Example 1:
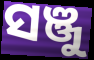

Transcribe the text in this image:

ସଞ୍ଜୁ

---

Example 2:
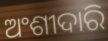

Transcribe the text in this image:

ଅଂଶୀଦାରି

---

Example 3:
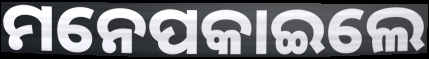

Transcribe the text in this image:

ମନେପକାଇଲେ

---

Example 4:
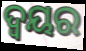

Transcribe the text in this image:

ଦ୍ଵୟର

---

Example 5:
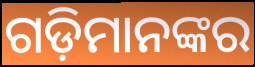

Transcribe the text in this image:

ଗଡ଼ିମାନଙ୍କର